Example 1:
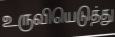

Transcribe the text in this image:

உருவியெடுத்து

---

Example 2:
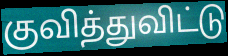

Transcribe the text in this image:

குவித்துவிட்டு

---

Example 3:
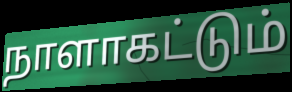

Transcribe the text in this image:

நாளாகட்டும்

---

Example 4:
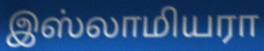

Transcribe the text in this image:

இஸ்லாமியரா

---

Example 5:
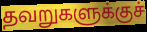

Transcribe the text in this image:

தவறுகளுக்குச்